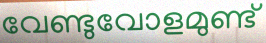
വേണ്ടുവോളമുണ്ട്